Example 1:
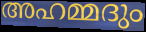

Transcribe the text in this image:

അഹമ്മദും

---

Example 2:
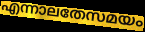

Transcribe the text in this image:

എന്നാലതേസമയം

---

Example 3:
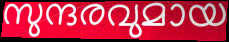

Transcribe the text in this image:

സുന്ദരവുമായ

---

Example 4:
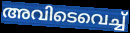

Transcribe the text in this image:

അവിടെവെച്ച്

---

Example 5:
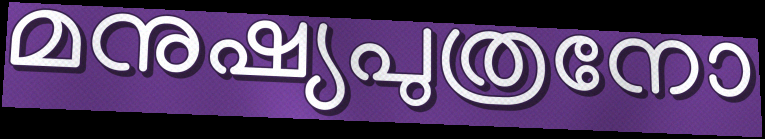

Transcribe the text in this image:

മനുഷ്യപുത്രനോ